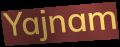
Yajnam